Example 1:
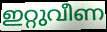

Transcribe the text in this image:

ഇറ്റുവീണ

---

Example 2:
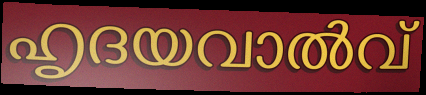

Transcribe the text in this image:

ഹൃദയവാൽവ്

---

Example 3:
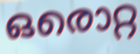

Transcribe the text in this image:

ഒരൊറ്റ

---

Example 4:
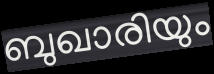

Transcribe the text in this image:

ബുഖാരിയും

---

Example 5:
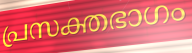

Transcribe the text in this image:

പ്രസക്തഭാഗം